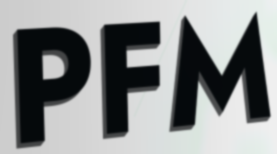
PFM